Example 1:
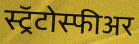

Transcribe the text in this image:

स्ट्रॅटोस्फीअर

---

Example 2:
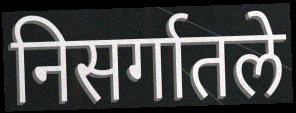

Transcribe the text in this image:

निसर्गातले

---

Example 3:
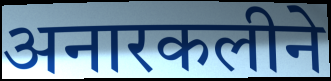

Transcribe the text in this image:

अनारकलीने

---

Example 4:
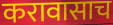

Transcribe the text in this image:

करावासाच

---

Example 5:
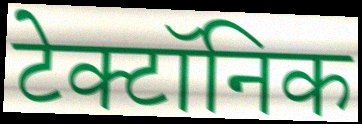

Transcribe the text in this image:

टेक्टॉनिक